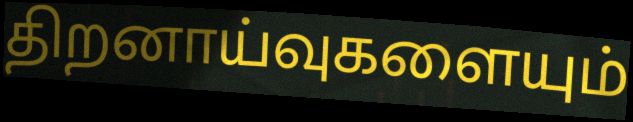
திறனாய்வுகளையும்